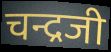
चन्द्रजी